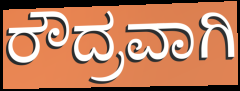
ರೌದ್ರವಾಗಿ